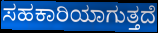
ಸಹಕಾರಿಯಾಗುತ್ತದೆ